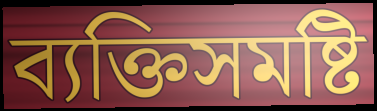
ব্যক্তিসমষ্টি